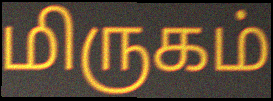
மிருகம்